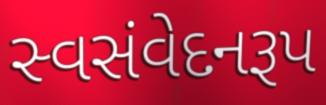
સ્વસંવેદનરૂપ